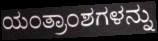
ಯಂತ್ರಾಂಶಗಳನ್ನು